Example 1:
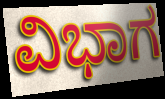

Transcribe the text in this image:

ವಿಭಾಗ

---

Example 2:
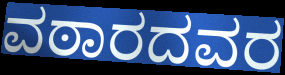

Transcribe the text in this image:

ವಠಾರದವರ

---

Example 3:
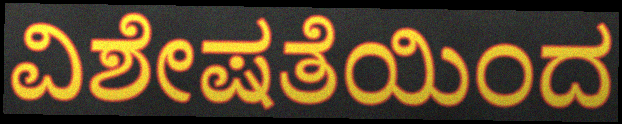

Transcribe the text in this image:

ವಿಶೇಷತೆಯಿಂದ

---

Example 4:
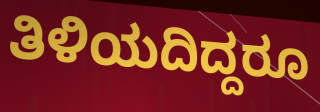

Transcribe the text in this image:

ತಿಳಿಯದಿದ್ದರೂ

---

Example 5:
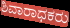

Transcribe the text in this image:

ಶಿವಾರಾಧಕರು